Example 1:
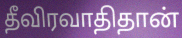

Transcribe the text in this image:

தீவிரவாதிதான்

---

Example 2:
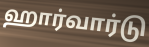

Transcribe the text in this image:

ஹார்வார்டு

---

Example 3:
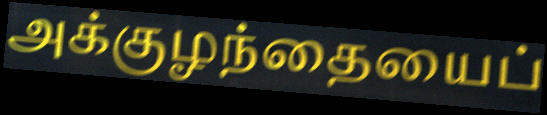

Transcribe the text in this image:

அக்குழந்தையைப்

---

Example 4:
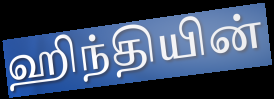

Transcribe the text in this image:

ஹிந்தியின்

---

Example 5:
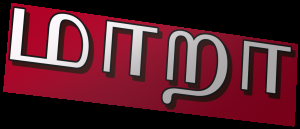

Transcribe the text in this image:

மாறா